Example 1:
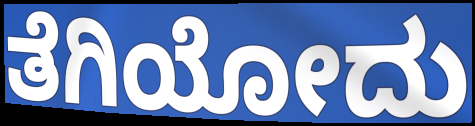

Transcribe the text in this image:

ತೆಗಿಯೋದು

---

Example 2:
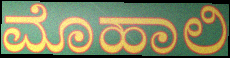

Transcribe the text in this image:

ಮೊಹಾಲಿ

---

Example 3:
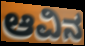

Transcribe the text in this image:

ಆವಿನ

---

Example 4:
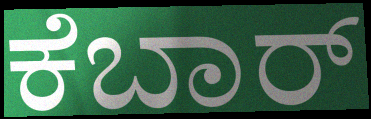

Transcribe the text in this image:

ಕೆಬಾರ್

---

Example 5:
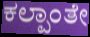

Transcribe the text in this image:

ಕಲ್ಪಾಂತೇ